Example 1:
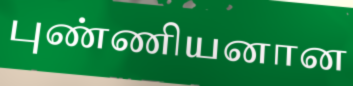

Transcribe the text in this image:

புண்ணியனான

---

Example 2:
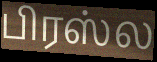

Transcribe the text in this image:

பிரஸ்ல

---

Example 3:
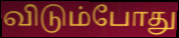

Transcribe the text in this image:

விடும்போது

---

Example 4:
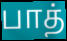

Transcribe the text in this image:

பாத்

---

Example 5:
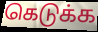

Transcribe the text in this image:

கெடுக்க